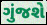
ગુંજશે